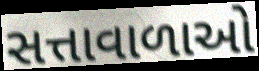
સત્તાવાળાઓ